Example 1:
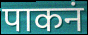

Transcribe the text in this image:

पाकनं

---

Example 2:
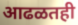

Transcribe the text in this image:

आढळतही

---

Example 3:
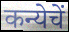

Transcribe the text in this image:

कन्येचें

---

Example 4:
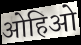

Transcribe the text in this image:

ओहिओ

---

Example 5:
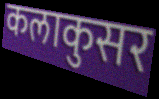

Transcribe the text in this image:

कलाकुसर